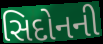
સિદોનની